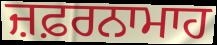
ਜ਼ਫ਼ਰਨਾਮਾਹ